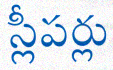
స్లీపర్లు